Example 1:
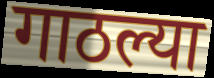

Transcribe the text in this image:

गाठल्या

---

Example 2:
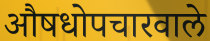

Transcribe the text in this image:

औषधोपचारवाले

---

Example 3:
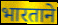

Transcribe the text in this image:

भारताने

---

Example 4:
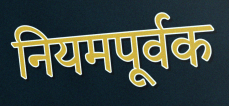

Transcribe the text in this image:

नियमपूर्वक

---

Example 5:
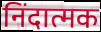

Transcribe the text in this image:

निंदात्मक